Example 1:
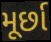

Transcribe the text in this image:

મૂર્છા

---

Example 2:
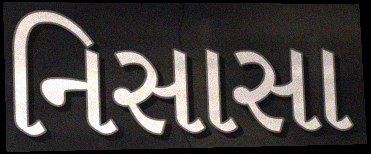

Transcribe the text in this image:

નિસાસા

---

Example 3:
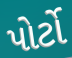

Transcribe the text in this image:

પોર્ટો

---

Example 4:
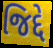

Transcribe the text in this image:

જિદ્દે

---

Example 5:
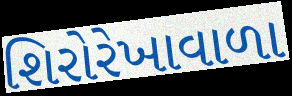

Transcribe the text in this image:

શિરોરેખાવાળા